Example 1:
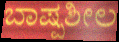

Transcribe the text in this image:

ಬಾಷ್ಪಶೀಲ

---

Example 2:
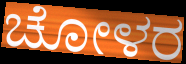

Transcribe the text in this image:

ಚೋಳರ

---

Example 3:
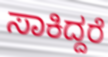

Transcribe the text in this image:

ಸಾಕಿದ್ದರೆ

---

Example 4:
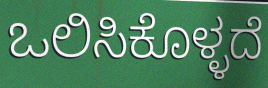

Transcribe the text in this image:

ಒಲಿಸಿಕೊಳ್ಳದೆ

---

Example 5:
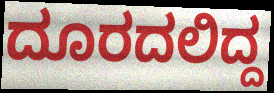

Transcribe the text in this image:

ದೂರದಲಿದ್ದ